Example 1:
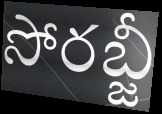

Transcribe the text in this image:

సోరబ్జీ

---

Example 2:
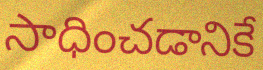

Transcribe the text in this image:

సాధించడానికే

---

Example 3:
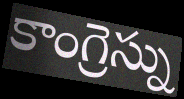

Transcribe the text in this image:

కాంగ్రెస్ను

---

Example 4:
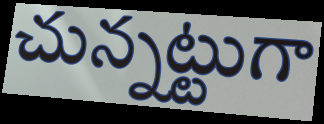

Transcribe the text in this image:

చున్నట్టుగా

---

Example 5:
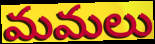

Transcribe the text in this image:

మమలు